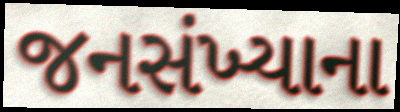
જનસંખ્યાના